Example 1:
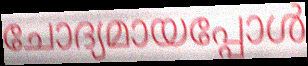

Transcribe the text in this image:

ചോദ്യമായപ്പോൾ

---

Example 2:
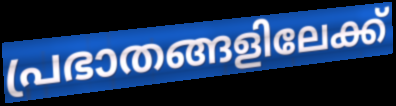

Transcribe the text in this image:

പ്രഭാതങ്ങളിലേക്ക്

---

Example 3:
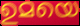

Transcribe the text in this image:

ഉമയെ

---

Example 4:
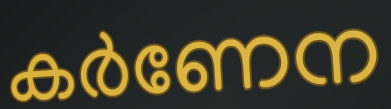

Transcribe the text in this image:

കർണേന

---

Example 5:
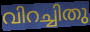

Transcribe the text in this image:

വിറച്ചിതു